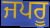
ਜਪਰੂ